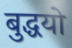
बुद्धयो